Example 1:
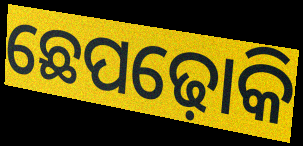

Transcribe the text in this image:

ଛେପଢ଼ୋକି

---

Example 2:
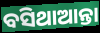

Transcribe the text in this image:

ବସିଥାଆନ୍ତା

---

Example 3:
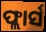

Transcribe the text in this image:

ଫ୍ଲାର୍ସ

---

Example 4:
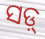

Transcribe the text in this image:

ସଡ଼୍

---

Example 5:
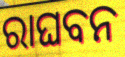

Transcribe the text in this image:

ରାଘବନ